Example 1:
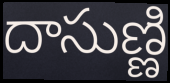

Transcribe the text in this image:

దాసుణ్ణి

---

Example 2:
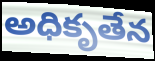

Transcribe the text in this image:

అధికృతేన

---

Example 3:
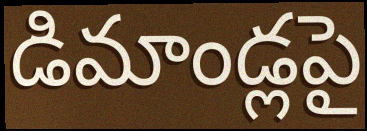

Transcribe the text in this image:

డిమాండ్లపై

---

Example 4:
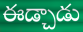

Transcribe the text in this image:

ఈడ్చాడు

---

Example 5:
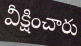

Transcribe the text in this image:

వీక్షించారు